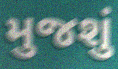
મુજશું